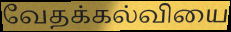
வேதக்கல்வியை